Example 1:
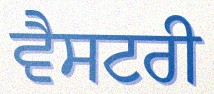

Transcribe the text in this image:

ਵੈਸਟਰੀ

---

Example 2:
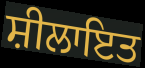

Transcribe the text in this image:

ਸ਼ੀਲਾਇਤ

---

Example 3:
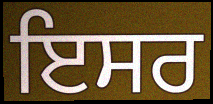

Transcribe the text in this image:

ਇਸਰ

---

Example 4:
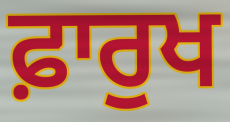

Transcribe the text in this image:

ਫ਼ਾਰੁਖ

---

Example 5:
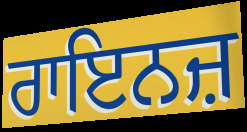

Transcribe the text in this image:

ਰਾਇਨਜ਼